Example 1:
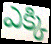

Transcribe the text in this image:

ఎక్కి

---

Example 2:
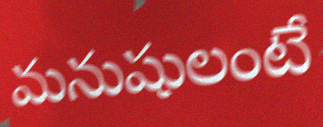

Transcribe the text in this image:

మనుషులంటే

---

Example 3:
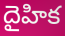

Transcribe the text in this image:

దైహిక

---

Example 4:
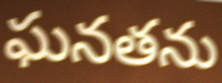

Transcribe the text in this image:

ఘనతను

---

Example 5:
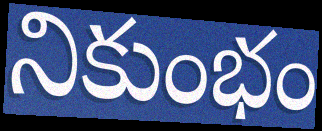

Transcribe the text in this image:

నికుంభం